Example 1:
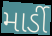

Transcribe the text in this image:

માર્ડી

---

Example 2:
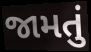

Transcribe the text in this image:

જામતું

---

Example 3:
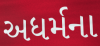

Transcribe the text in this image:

અધર્મના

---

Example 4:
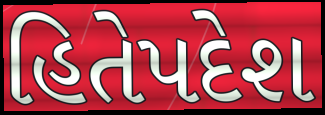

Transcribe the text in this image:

હિતેપદેશ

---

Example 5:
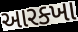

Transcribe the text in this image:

આરક્ખા